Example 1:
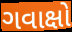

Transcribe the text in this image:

ગવાક્ષો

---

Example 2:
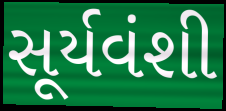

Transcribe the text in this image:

સૂર્યવંશી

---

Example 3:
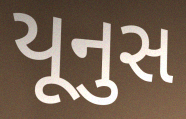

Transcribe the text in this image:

યૂનુસ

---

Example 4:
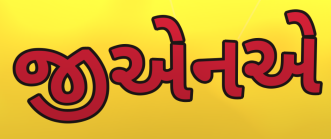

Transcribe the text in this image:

જીએનએ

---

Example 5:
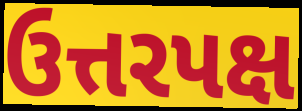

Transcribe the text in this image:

ઉત્તરપક્ષ